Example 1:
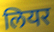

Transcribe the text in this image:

लियर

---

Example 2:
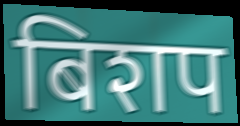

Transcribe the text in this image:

बिशप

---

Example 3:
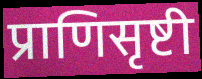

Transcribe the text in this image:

प्राणिसृष्टी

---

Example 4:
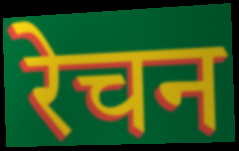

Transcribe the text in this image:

रेचन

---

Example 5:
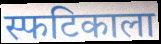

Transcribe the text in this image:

स्फटिकाला